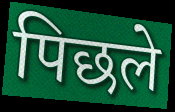
पिछले